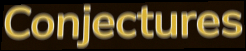
Conjectures